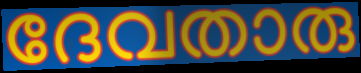
ദേവതാരു